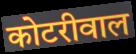
कोटरीवाल